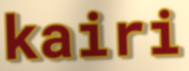
kairi